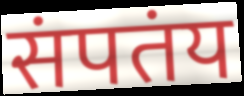
संपतंय